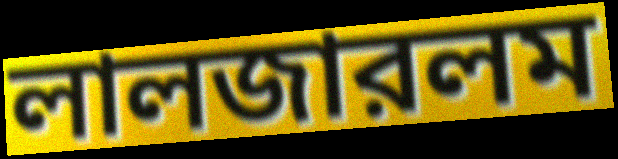
লালজারলম